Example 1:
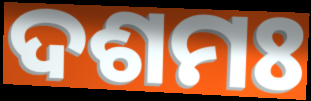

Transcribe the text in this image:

ଦଶମଃ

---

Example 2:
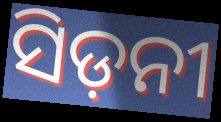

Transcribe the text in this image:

ସିଡ଼ନୀ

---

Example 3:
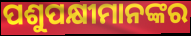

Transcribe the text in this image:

ପଶୁପକ୍ଷୀମାନଙ୍କର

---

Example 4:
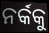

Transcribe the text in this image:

ନର୍କକୁ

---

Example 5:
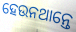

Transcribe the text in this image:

ହେଉନଥାନ୍ତେ